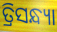
ତ୍ରିସନ୍ଧ୍ୟା